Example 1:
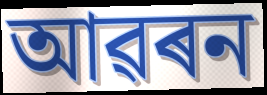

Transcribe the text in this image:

আৱৰন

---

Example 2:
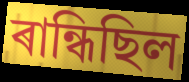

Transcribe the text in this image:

ৰান্ধিছিল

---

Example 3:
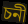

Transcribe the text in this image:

চনী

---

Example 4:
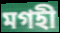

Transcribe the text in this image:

মগহী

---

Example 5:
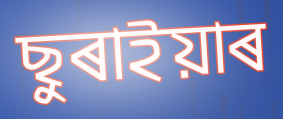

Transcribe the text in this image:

ছুৰাইয়াৰ